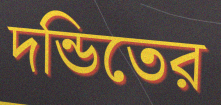
দন্ডিতের